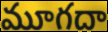
మూగదా